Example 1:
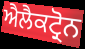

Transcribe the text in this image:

ਐਲੈਕਟ੍ਰੋਨ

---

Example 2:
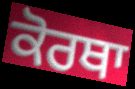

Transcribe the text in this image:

ਕੋਰਥਾ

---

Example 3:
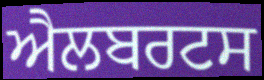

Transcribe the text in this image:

ਐਲਬਰਟਸ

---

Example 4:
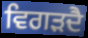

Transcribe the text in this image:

ਵਿਗੜਦੈ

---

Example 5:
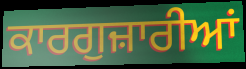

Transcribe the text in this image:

ਕਾਰਗੁਜ਼ਾਰੀਆਂ